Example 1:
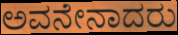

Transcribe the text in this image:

ಅವನೇನಾದರು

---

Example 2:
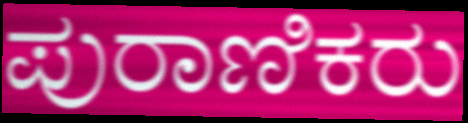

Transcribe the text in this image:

ಪುರಾಣಿಕರು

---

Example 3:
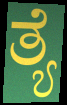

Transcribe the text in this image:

ತ್ಯೆ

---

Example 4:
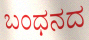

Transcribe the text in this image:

ಬಂಧನದ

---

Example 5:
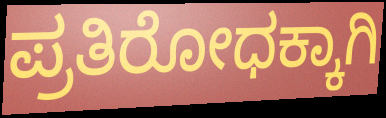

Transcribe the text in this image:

ಪ್ರತಿರೋಧಕ್ಕಾಗಿ